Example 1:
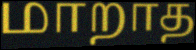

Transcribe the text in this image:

மாறாத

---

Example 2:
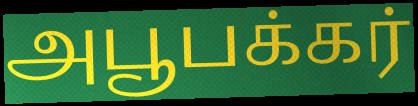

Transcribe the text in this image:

அபூபக்கர்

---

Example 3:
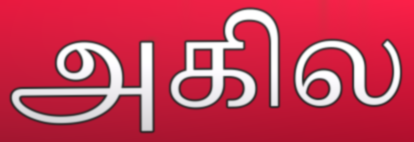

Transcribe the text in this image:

அகில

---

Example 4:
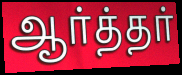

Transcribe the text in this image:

ஆர்த்தர்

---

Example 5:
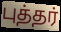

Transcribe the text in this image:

புத்தர்